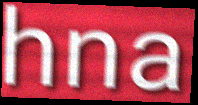
hna